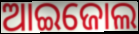
ଆଇଜୋଲ